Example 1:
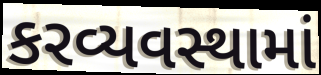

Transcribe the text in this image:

કરવ્યવસ્થામાં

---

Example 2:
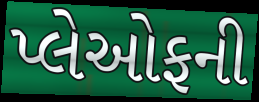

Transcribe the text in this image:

પ્લેઓફની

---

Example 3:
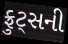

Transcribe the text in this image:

ફ્રુટ્સની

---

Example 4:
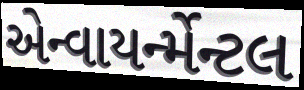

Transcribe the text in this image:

એન્વાયર્ન્મેન્ટલ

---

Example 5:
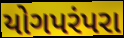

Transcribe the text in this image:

યોગપરંપરા